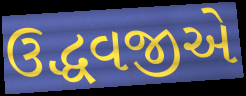
ઉદ્ધવજીએ